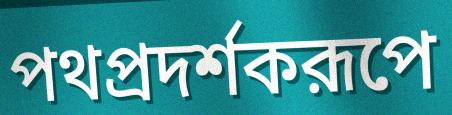
পথপ্রদর্শকরূপে